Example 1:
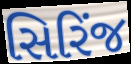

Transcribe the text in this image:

સિરિંજ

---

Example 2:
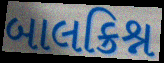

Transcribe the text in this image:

બાલક્રિશ્ન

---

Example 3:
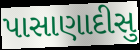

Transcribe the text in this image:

પાસાણાદીસુ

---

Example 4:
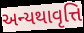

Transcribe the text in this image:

અન્યથાવૃત્તિ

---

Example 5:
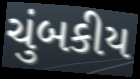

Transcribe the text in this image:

ચુંબકીય